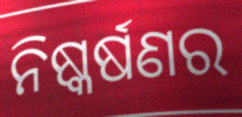
ନିଷ୍କର୍ଷଣର